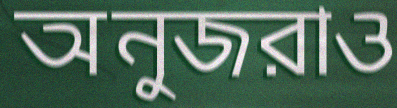
অনুজরাও